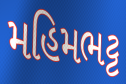
મહિમભટ્ટ